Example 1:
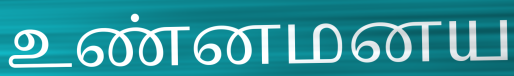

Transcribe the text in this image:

உண்னமனய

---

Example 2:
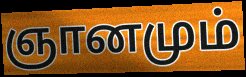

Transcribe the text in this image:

ஞானமும்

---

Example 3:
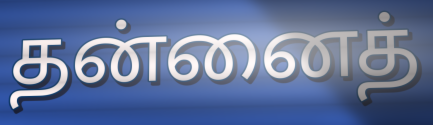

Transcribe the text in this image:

தன்னைத்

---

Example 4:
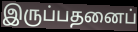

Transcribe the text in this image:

இருப்பதனைப்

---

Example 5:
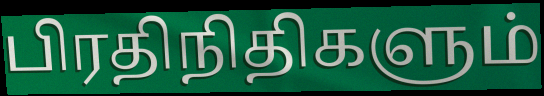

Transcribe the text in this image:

பிரதிநிதிகளும்